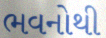
ભવનોથી